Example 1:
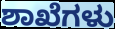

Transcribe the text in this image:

ಶಾಖೆಗಳು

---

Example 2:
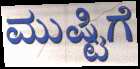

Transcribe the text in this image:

ಮುಷ್ಟಿಗೆ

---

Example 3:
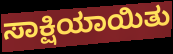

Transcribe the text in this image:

ಸಾಕ್ಷಿಯಾಯಿತು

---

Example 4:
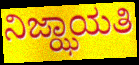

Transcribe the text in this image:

ನಿಜ್ಝಾಯತಿ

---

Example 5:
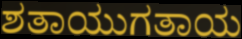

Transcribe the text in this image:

ಶತಾಯುಗತಾಯ